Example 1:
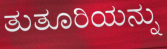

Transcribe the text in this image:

ತುತೂರಿಯನ್ನು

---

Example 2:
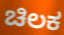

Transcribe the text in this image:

ಚಿಲಕ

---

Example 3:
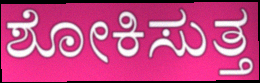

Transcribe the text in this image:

ಶೋಕಿಸುತ್ತ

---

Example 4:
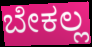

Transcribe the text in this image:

ಬೇಕಲ್ಲ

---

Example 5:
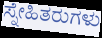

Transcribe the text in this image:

ಸ್ನೇಹಿತರುಗಳು